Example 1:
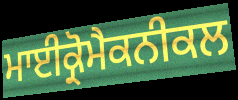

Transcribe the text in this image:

ਮਾਈਕ੍ਰੋਮੈਕਨੀਕਲ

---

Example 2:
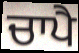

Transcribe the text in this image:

ਚਾਪੈ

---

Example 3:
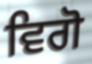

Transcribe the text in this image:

ਵਿਗੋ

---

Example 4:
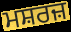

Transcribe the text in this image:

ਮਸ਼ਰਜ਼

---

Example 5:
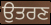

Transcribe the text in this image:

ਉਤਰਣ